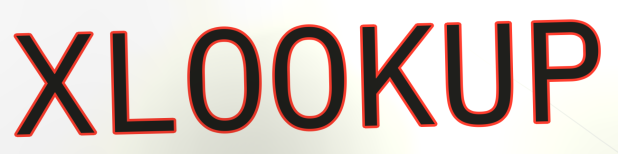
XLOOKUP